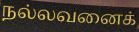
நல்லவனைக்